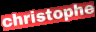
christophe